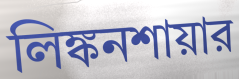
লিঙ্কনশায়ার